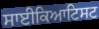
ਸਾਈਕਿਆਟਿਸਟ